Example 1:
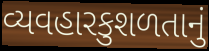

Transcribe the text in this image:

વ્યવહારકુશળતાનું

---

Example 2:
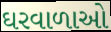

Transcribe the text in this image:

ઘરવાળાઓ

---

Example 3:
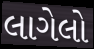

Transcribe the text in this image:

લાગેલો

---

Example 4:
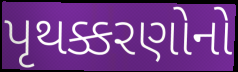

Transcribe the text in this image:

પૃથક્કરણોનો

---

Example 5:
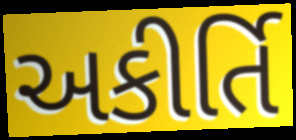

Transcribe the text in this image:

અકીર્તિ